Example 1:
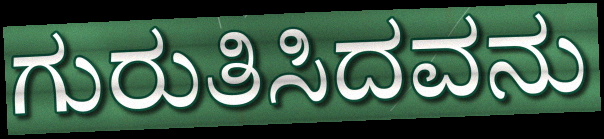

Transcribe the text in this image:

ಗುರುತಿಸಿದವನು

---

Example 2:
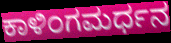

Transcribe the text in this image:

ಕಾಳಿಂಗಮರ್ಧನ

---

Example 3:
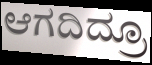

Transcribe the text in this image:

ಆಗದಿದ್ರೂ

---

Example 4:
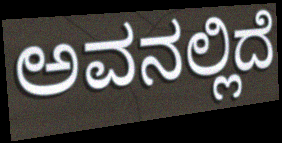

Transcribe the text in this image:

ಅವನಲ್ಲಿದೆ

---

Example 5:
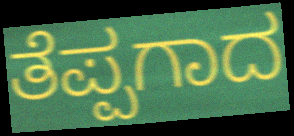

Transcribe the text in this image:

ತೆಪ್ಪಗಾದ